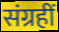
संग्रहीं